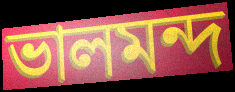
ভালমন্দ